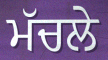
ਮੱਚਲੇ